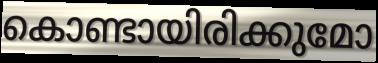
കൊണ്ടായിരിക്കുമോ